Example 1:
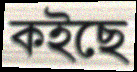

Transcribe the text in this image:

কইছে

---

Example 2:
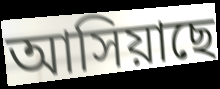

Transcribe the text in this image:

আসিয়াছে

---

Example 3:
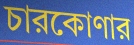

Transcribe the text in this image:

চারকোণার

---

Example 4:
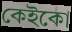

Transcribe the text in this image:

কেইকো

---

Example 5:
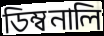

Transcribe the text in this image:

ডিম্বনালি